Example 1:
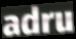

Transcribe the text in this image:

adru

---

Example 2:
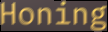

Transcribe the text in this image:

Honing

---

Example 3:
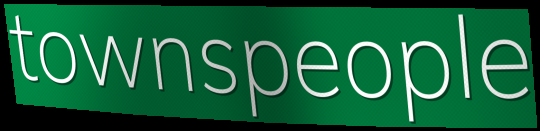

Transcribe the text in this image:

townspeople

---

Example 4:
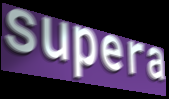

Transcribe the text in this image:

supera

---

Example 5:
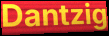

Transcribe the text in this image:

Dantzig